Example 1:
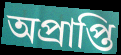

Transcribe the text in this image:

অপ্রাপ্তি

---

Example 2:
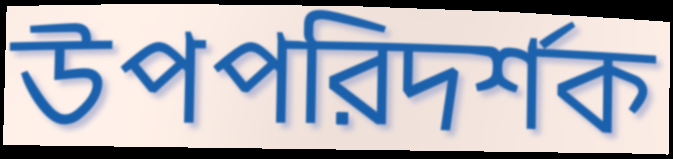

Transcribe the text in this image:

উপপরিদর্শক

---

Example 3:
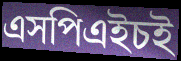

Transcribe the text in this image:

এসপিএইচই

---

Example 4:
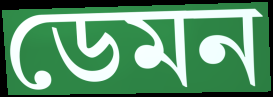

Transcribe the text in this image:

ডেমন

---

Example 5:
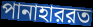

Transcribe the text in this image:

পানাহাররত